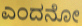
ಎಂದನೋ